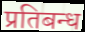
प्रतिबन्ध